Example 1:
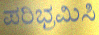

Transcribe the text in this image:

ಪರಿಭ್ರಮಿಸಿ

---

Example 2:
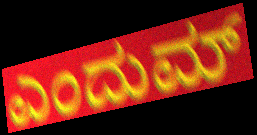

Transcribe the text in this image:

ಎಂದುಮ್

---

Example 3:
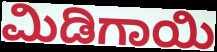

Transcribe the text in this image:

ಮಿಡಿಗಾಯಿ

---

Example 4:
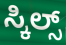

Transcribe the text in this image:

ಸ್ಕಿಲ್ಸ್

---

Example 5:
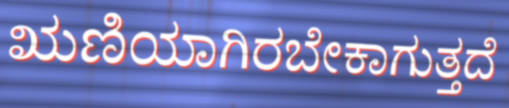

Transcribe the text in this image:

ಋಣಿಯಾಗಿರಬೇಕಾಗುತ್ತದೆ